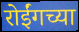
रोईंगच्या